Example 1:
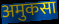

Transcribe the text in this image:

अमुकसा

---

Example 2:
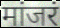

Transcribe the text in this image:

मांजरं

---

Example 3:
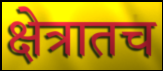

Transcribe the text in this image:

क्षेत्रातच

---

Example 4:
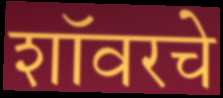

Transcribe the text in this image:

शॉवरचे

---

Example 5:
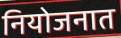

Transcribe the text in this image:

नियोजनात